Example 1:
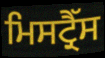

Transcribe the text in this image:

ਮਿਸਟ੍ਰੈੱਸ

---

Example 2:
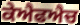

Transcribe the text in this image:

ਕੇਐਫਐਚ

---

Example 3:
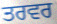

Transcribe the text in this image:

ਤਰਵਰ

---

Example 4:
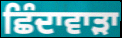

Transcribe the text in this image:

ਛਿੰਦਾਵਾੜਾ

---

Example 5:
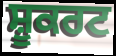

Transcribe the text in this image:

ਸ਼ੂਕਰਟ